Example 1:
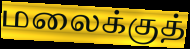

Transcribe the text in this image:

மலைக்குத்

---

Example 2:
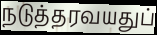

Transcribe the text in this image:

நடுத்தரவயதுப்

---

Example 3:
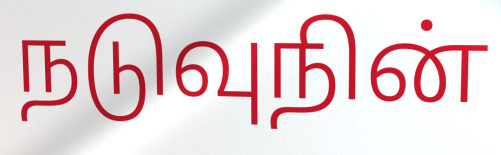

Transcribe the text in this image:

நடுவுநின்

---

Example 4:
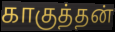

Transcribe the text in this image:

காகுத்தன்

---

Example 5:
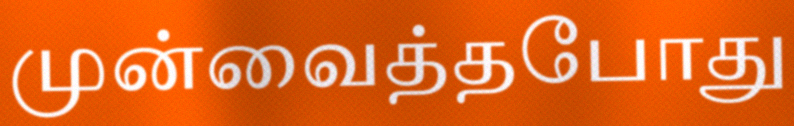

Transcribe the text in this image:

முன்வைத்தபோது